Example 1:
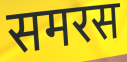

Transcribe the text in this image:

समरस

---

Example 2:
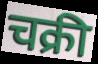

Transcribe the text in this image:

चक्री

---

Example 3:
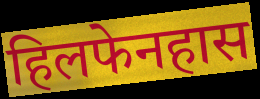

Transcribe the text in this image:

हिलफेनहास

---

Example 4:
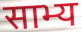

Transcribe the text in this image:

साभ्य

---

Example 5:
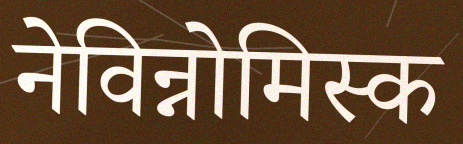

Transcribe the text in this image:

नेविन्नोमिस्क